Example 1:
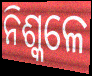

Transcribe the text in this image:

ନିଶ୍କଳେ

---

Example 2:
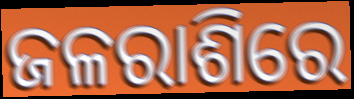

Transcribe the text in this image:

ଜଳରାଶିରେ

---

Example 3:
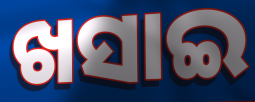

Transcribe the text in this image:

ଖସାଇ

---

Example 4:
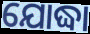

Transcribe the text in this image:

ଯୋଦ୍ଧା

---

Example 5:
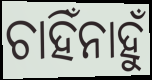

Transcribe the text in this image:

ଚାହିଁନାହୁଁ